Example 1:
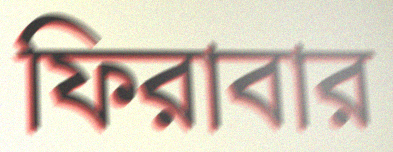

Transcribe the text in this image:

ফিরাবার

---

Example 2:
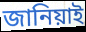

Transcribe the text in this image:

জানিয়াই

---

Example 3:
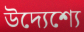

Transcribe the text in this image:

উদ্যেশ্যে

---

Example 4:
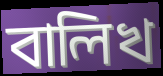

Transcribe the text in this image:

বালিখ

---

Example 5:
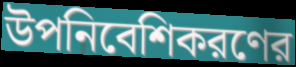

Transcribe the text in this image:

উপনিবেশিকরণের